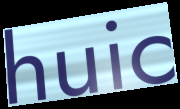
huic